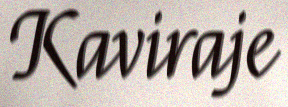
Kaviraje